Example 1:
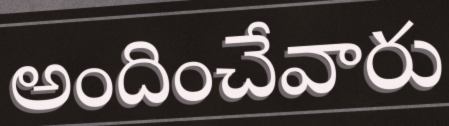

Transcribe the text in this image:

అందించేవారు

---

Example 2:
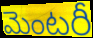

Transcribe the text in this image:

మెంటరీ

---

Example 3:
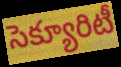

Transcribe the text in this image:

సెక్యూరిటీ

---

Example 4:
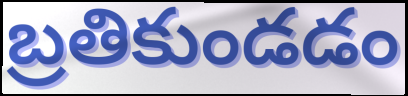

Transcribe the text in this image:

బ్రతికుండడం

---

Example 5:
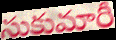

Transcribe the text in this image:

సుకుమారీ